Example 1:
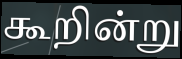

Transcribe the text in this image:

கூறின்று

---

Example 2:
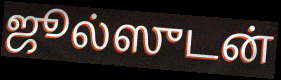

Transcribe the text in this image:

ஜூல்ஸுடன்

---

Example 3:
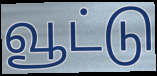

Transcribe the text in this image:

வூட்டு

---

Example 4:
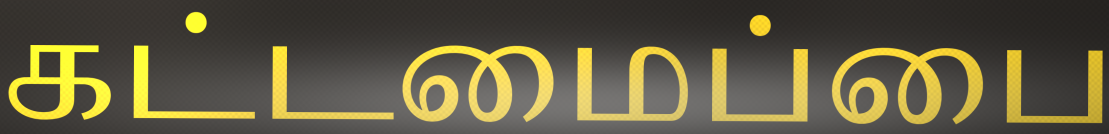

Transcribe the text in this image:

கட்டமைப்பை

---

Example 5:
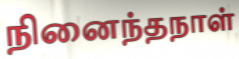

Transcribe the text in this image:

நினைந்தநாள்